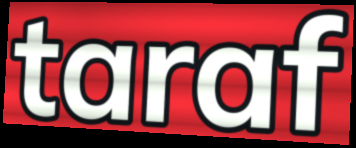
taraf